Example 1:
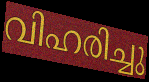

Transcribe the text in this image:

വിഹരിച്ചു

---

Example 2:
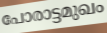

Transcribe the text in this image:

പോരാട്ടമുഖം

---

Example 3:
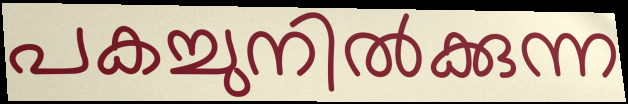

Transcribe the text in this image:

പകച്ചുനിൽക്കുന്ന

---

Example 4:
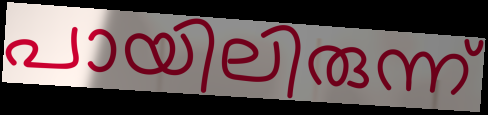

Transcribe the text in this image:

പായിലിരുന്ന്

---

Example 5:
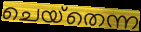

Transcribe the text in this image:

ചെയ്‌തെന്ന